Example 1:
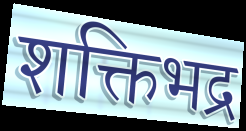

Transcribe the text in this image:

शक्तिभद्र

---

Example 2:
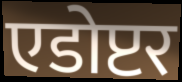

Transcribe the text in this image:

एडोप्टर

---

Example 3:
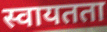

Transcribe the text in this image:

स्वायतता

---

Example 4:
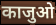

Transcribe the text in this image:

काजुओ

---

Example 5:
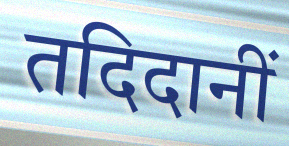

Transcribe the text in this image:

तदिदानीं